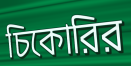
চিকোরির